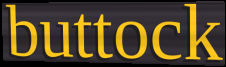
buttock